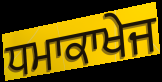
ਧਮਾਕਾਖੇਜ